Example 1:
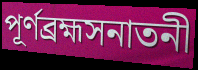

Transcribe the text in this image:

পূর্ণব্রহ্মসনাতনী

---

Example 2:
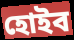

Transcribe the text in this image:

হোইব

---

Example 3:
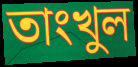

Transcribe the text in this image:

তাংখুল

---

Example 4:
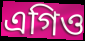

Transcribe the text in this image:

এগিও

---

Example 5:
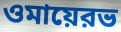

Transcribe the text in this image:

ওমায়েরভ